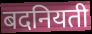
बदनियती